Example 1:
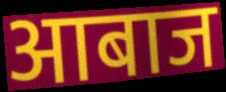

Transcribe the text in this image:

आबाज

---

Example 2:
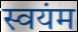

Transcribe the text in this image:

स्वयंम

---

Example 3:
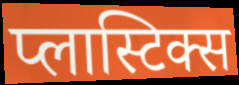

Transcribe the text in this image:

प्लास्टिक्स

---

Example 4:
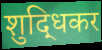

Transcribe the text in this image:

शुद्धिकर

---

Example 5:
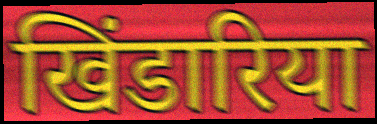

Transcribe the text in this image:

खिंडारिया